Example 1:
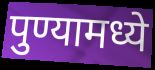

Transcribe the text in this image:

पुण्यामध्ये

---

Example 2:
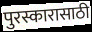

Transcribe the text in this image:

पुरस्कारासाठी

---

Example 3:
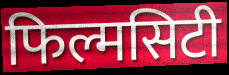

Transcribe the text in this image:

फिल्मसिटी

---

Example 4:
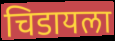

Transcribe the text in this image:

चिडायला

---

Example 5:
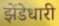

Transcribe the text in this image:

झेंडेधारी